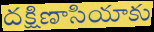
దక్షిణాసియాకు